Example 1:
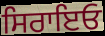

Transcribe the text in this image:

ਸਿਰਾਇਓ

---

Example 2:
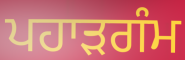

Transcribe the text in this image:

ਪਹਾੜਗੰਮ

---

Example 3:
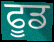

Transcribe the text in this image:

ਫੂਡ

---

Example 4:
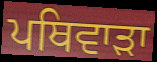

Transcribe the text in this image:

ਪਥਿਵਾੜਾ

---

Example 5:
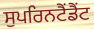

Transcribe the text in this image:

ਸੁਪਰਿਨਟੈਂਡੈਂਟ